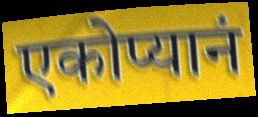
एकोप्यानं